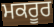
ਮਕਰੂਰ